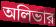
অলিভার